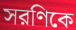
সরণিকে